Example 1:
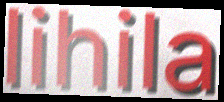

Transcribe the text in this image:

lihila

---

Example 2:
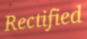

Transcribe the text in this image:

Rectified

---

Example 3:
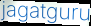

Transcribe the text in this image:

jagatguru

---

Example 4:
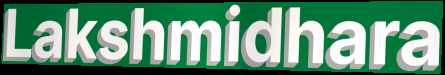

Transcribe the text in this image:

Lakshmidhara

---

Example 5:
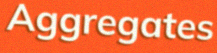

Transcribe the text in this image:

Aggregates